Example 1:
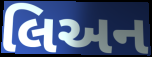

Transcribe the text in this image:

લિઅન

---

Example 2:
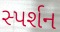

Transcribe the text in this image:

સ્પર્શન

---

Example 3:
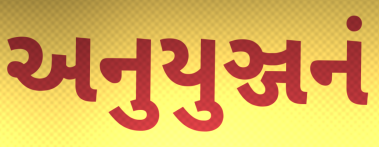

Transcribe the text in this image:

અનુયુઞ્જનં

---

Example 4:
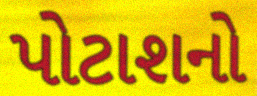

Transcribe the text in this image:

પોટાશનો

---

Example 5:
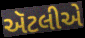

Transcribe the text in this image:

ઍટલીએ